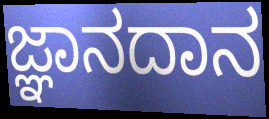
ಜ್ಞಾನದಾನ